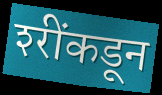
श्रींकडून